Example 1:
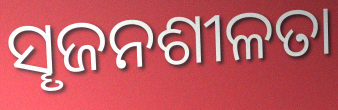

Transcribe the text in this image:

ସୄଜନଶୀଳତା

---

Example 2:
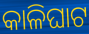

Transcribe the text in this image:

କାଳିଘାଟ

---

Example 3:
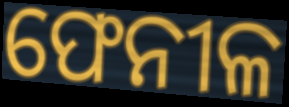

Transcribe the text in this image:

ଫେନୀଳ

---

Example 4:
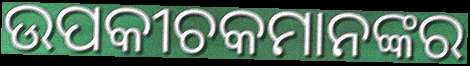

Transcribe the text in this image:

ଉପକୀଚକମାନଙ୍କର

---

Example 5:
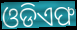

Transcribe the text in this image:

ଓଡିଏଫ